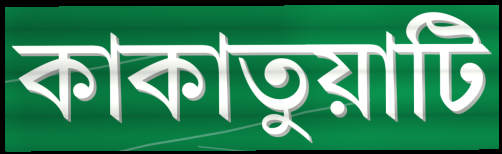
কাকাতুয়াটি